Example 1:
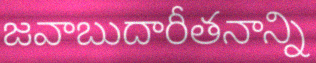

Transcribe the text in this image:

జవాబుదారీతనాన్ని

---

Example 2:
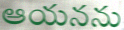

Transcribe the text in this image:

ఆయనను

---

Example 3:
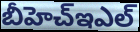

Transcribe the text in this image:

బీహెచ్ఇఎల్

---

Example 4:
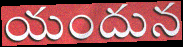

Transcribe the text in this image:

యందున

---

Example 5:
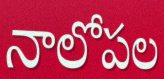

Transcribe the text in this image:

నాలోపల